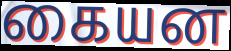
கையன